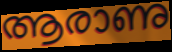
ആരാണു